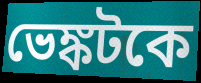
ভেঙ্কটকে